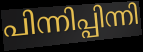
പിന്നിപ്പിന്നി